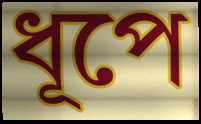
ধূপে